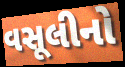
વસૂલીનો